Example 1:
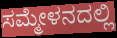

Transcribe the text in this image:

ಸಮ್ಮೇಳನದಲ್ಲಿ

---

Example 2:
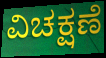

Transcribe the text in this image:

ವಿಚಕ್ಷಣೆ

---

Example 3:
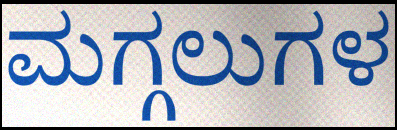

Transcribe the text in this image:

ಮಗ್ಗಲುಗಳ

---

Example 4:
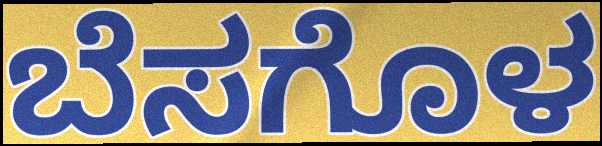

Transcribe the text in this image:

ಬೆಸಗೊಳ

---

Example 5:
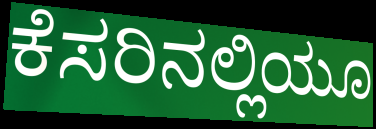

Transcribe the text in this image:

ಕೆಸರಿನಲ್ಲಿಯೂ